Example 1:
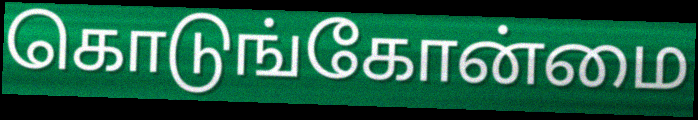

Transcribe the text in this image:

கொடுங்கோன்மை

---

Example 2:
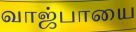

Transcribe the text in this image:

வாஜ்பாயை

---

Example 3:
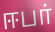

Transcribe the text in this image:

ஈபர்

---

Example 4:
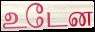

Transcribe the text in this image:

உடேன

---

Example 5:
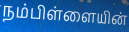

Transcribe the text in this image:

நம்பிள்ளையின்